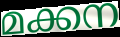
മക്കന